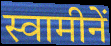
स्वामीनें